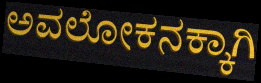
ಅವಲೋಕನಕ್ಕಾಗಿ